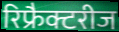
रिफ्रैक्टरीज